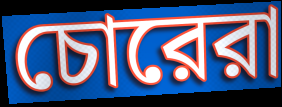
চোরেরা